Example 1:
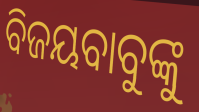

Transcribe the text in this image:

ବିଜୟବାବୁଙ୍କୁ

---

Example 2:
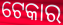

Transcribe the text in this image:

ଟେକାର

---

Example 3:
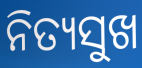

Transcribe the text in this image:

ନିତ୍ୟସୁଖ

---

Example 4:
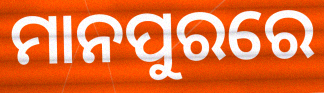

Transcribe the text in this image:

ମାନପୁରରେ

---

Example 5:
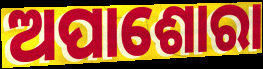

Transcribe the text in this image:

ଅପାଶୋରା